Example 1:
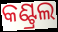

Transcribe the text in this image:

କଣ୍ଟ୍ରଲ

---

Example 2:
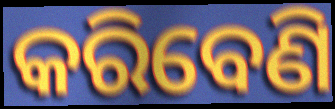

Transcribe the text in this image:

କରିବେଣି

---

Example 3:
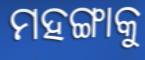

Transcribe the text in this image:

ମହଙ୍ଗାକୁ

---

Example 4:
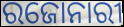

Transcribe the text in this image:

ରଜୋନାରୀ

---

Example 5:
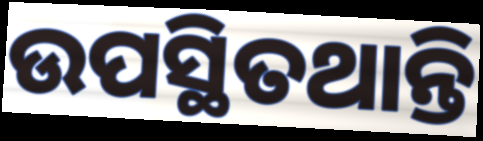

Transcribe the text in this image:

ଉପସ୍ଥିତଥାନ୍ତି